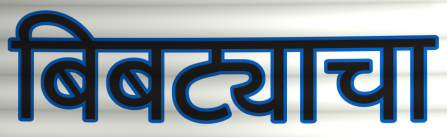
बिबट्याचा